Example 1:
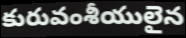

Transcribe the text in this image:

కురువంశీయులైన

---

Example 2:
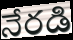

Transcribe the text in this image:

నేరడి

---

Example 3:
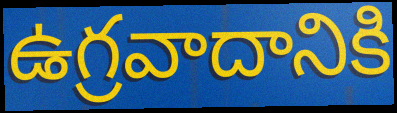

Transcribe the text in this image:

ఉగ్రవాదానికి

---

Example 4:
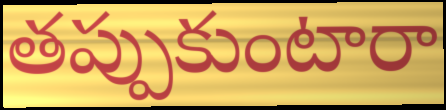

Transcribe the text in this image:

తప్పుకుంటారా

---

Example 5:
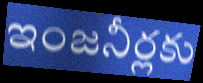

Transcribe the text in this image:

ఇంజనీర్లకు